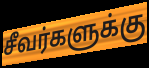
சீவர்களுக்கு